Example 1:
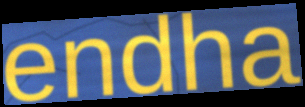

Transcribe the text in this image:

endha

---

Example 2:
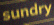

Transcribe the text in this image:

sundry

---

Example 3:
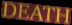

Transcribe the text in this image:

DEATH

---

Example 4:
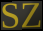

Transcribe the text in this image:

SZ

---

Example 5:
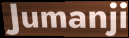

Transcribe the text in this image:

Jumanji